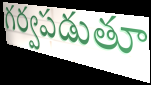
గర్వపడుతూ